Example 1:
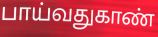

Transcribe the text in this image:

பாய்வதுகாண்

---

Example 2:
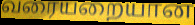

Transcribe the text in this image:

வரையறையான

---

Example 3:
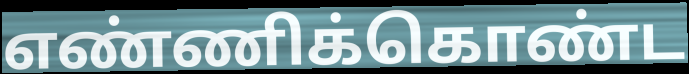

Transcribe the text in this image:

எண்ணிக்கொண்ட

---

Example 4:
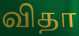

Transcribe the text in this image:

விதா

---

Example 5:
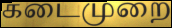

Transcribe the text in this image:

கடைமுறை